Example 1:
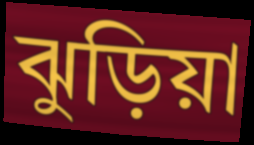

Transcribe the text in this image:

ঝুড়িয়া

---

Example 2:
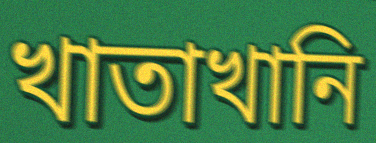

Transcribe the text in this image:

খাতাখানি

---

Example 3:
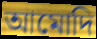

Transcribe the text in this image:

আমোদি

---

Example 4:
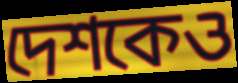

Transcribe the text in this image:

দেশকেও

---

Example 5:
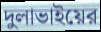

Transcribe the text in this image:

দুলাভাইয়ের